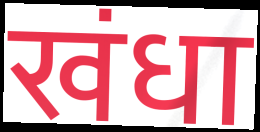
खंधा